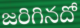
జరిగినదో